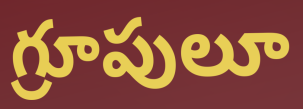
గ్రూపులూ